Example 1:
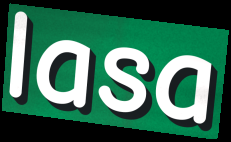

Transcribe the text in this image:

lasa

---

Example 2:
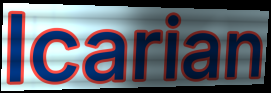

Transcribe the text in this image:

Icarian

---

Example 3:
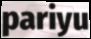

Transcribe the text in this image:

pariyu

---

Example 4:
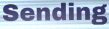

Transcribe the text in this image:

Sending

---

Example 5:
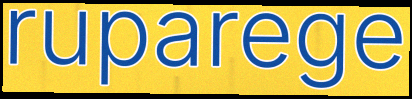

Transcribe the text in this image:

ruparege